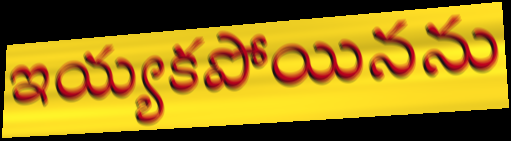
ఇయ్యకపోయినను